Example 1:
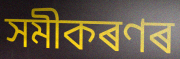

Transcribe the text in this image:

সমীকৰণৰ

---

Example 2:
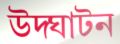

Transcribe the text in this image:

উদ্ঘাটন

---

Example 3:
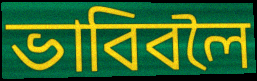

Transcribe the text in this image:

ভাবিবলৈ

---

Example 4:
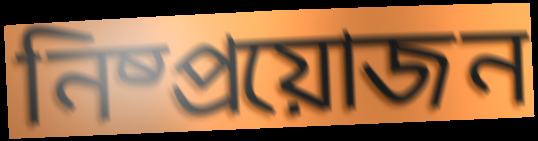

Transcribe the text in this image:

নিষ্প্ৰয়োজন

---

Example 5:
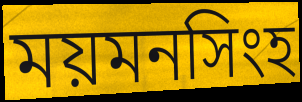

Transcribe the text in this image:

ময়মনসিংহ